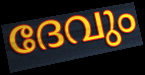
ദേവും